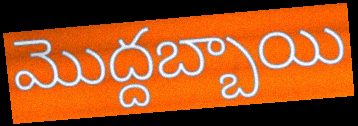
మొద్దబ్బాయి